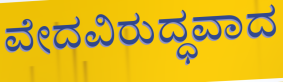
ವೇದವಿರುದ್ಧವಾದ